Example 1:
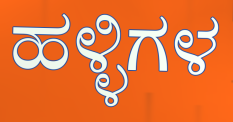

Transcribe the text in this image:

ಹಳ್ಳಿಗಳ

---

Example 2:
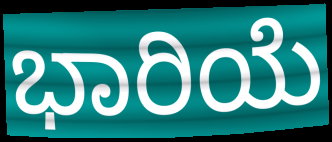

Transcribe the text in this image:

ಭಾರಿಯೆ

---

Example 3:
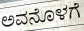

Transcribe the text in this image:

ಅವನೊಳಗೆ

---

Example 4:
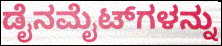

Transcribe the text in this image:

ಡೈನಮೈಟ್‌ಗಳನ್ನು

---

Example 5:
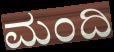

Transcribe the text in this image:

ಮಂದಿ